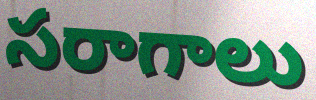
సరాగాలు